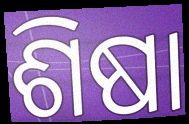
ଶିଷା